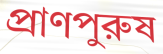
প্রাণপুরুষ